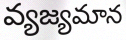
వ్యజ్యమాన